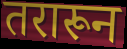
तरारून